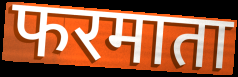
फरमाता